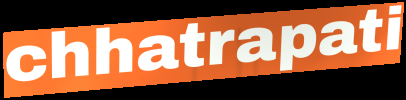
chhatrapati